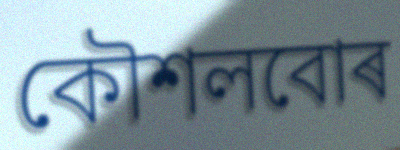
কৌশলবোৰ